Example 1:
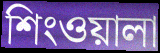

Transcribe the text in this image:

শিংওয়ালা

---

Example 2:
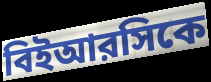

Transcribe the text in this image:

বিইআরসিকে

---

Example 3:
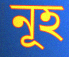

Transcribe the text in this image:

নূহ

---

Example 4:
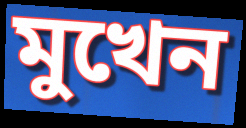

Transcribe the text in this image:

মুখেন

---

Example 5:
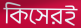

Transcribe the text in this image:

কিসেরই